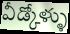
వీడ్కోళ్ళు